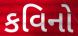
કવિનો